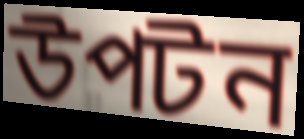
উপটন